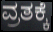
ವ್ರತಕ್ಕೆ